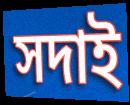
সদাই